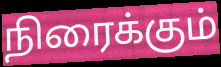
நிரைக்கும்